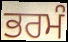
ਭਰਮੰ